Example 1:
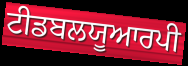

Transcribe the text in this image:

ਟੀਡਬਲਯੂਆਰਪੀ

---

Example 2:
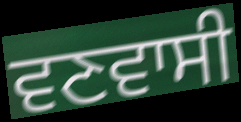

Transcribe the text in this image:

ਵਣਵਾਸੀ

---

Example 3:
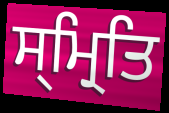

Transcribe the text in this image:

ਸ੍ਮ੍ਰਿਤਿ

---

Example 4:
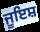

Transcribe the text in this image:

ਜੂਇਸ਼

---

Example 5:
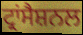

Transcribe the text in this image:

ਟ੍ਰਾਂਸੈਸ਼ਨਲ